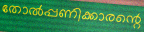
തോൽപ്പണിക്കാരന്റെ